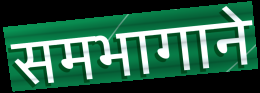
समभागाने